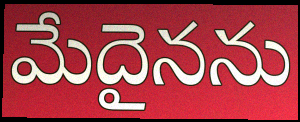
మేదైనను